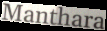
Manthara